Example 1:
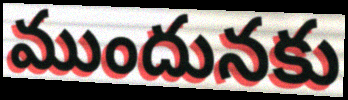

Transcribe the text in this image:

ముందునకు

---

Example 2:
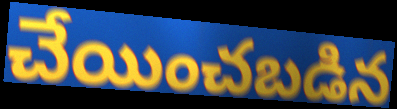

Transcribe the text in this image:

చేయించబడిన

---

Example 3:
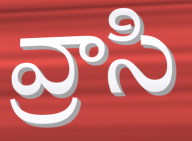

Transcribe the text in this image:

వ్రాసి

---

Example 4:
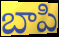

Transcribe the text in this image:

బాపి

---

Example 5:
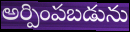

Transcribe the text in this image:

అర్పింపబడును